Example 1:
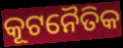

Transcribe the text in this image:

କୂଟନୈତିକ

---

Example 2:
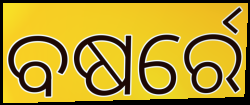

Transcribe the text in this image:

ବଷର୍ରେ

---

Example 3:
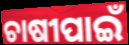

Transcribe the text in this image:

ଚାଷୀପାଇଁ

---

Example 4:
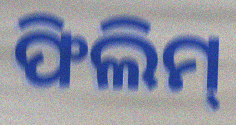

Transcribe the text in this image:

ଫିଲିମ୍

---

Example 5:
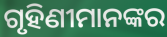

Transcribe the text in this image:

ଗୃହିଣୀମାନଙ୍କର